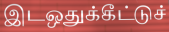
இடஒதுக்கீட்டுச்